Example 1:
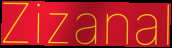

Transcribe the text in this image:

Zizanal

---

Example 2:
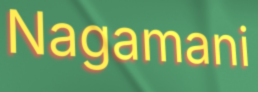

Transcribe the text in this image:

Nagamani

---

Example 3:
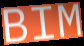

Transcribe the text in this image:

BIM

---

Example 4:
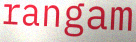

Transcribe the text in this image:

rangam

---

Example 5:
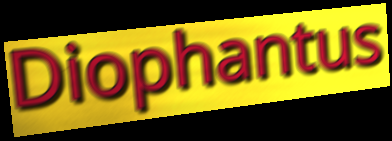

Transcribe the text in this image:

Diophantus